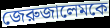
জেরুজালেমকে